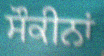
ਸੌਕੀਨਾਂ